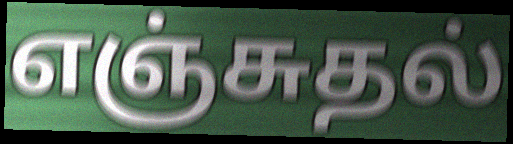
எஞ்சுதல்